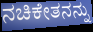
ನಚಿಕೇತನನ್ನು